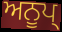
ਅਨੂਪ੍